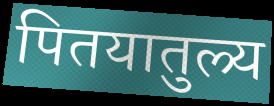
पितयातुल्य